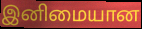
இனிமையான